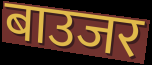
बाउजर